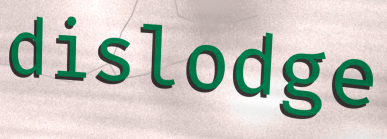
dislodge